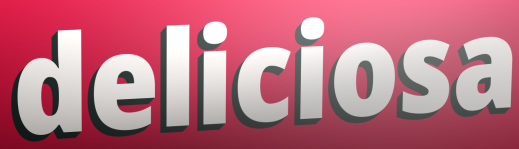
deliciosa